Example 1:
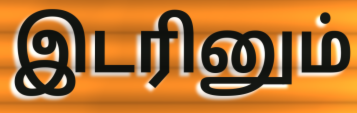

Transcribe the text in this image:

இடரினும்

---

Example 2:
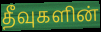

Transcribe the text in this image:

தீவுகளின்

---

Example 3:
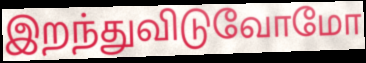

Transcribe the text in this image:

இறந்துவிடுவோமோ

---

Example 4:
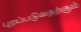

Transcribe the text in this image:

புறப்படுவதற்கும்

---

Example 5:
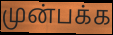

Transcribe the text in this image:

முன்பக்க